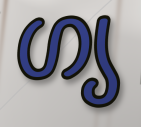
ഗ്യ